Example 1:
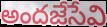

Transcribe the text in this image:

అందజేసేవి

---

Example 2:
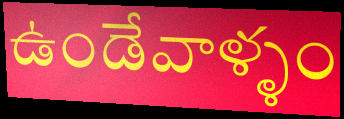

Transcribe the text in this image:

ఉండేవాళ్ళం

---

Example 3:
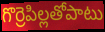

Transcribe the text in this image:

గొర్రెపిల్లతోపాటు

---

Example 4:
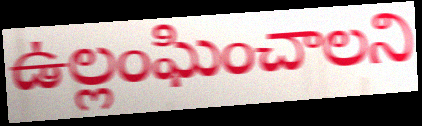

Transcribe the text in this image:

ఉల్లంఘించాలని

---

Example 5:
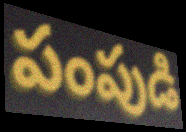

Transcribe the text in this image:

పంపుడి